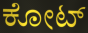
ಕೋಟ್